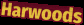
Harwoods